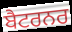
ਬੈਟਰਨਰ